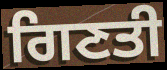
ਗਿਣਤੀ